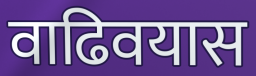
वाढिवयास